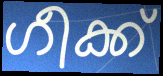
ഗീക്ക്